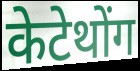
केटेथोंग